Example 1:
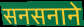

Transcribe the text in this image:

सनसनाने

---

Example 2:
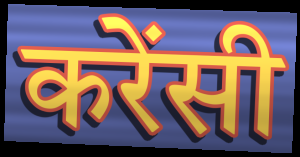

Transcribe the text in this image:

करेंसी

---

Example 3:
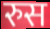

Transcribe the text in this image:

रुस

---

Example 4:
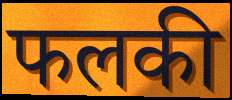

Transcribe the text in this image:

फलकी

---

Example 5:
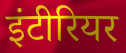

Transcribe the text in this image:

इंटीरियर